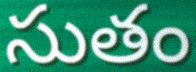
సుతం